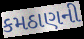
કમઠાણની